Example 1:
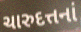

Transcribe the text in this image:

ચારુદત્તનાં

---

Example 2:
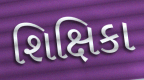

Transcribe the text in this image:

શિક્ષિકા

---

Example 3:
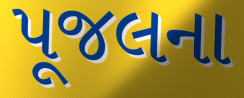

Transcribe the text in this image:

પૂજલના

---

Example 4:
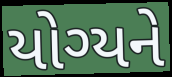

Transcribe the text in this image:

યોગ્યને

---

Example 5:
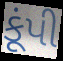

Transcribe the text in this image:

કૂંપી